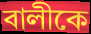
বালীকে